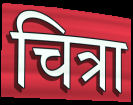
चित्रा